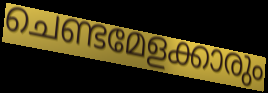
ചെണ്ടമേളക്കാരും